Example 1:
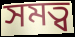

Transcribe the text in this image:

সমত্ব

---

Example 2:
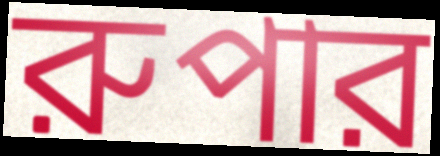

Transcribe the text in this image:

রুপার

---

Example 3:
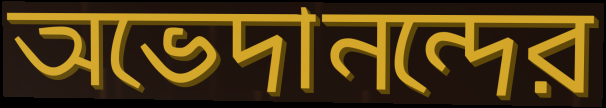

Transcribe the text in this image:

অভেদানন্দের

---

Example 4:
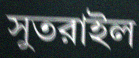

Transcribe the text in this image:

সুতরাইল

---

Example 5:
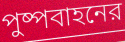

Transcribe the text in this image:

পুষ্পবাহনের